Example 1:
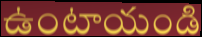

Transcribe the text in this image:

ఉంటాయండి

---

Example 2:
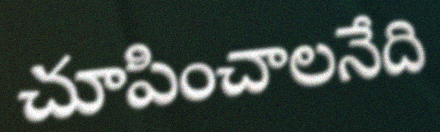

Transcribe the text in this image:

చూపించాలనేది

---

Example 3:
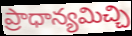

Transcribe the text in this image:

ప్రాధాన్యమిచ్చి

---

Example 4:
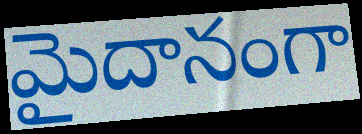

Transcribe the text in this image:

మైదానంగా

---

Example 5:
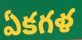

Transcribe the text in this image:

ఏకగళ